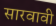
सारवावी